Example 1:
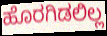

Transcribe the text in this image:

ಹೊರಗಿಡಲಿಲ್ಲ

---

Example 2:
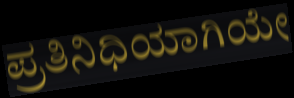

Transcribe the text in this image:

ಪ್ರತಿನಿಧಿಯಾಗಿಯೇ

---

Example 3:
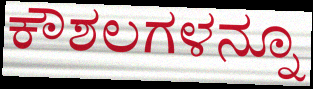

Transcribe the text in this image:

ಕೌಶಲಗಳನ್ನೂ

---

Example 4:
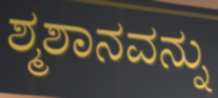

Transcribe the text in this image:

ಶ್ಮಶಾನವನ್ನು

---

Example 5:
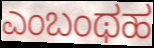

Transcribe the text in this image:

ಎಂಬಂಥಹ